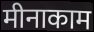
मीनाकाम